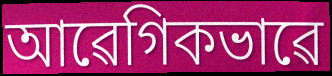
আৱেগিকভাৱে